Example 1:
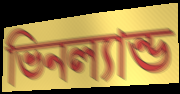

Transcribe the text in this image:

ভিনল্যান্ড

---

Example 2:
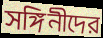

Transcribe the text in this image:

সঙ্গিনীদের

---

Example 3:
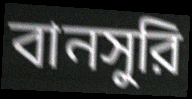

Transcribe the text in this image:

বানসুরি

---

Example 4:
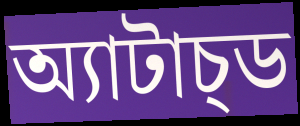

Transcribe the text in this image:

অ্যাটাচ্ড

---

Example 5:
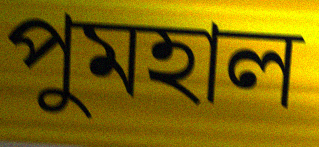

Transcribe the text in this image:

পুমহাল